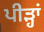
ਪੀੜ੍ਹਾਂ